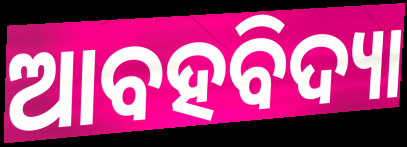
ଆବହବିଦ୍ୟା